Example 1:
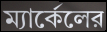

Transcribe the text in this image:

ম্যার্কেলের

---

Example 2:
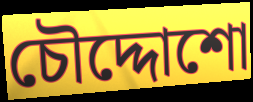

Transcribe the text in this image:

চৌদ্দোশো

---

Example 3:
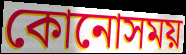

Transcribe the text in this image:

কোনোসময়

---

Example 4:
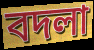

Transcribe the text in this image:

বদলা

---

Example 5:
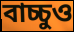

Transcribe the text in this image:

বাচ্চুও